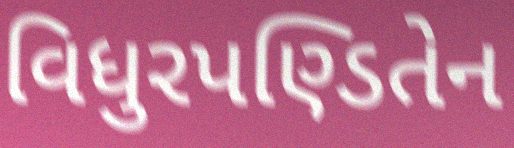
વિધુરપણ્ડિતેન